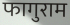
फागुराम